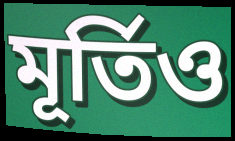
মূৰ্তিও